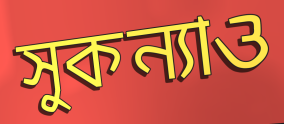
সুকন্যাও